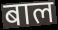
बाल